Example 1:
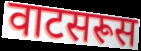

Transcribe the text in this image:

वाटसरूस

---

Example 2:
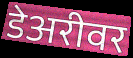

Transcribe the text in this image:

डेअरीवर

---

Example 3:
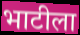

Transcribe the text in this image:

भाटीला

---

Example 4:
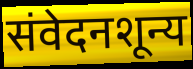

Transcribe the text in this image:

संवेदनशून्य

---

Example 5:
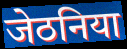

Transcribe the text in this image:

जेठनिया